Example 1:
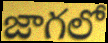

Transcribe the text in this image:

జాగలో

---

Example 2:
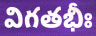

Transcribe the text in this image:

విగతభీః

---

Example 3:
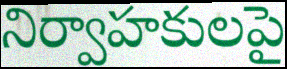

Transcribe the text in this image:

నిర్వాహకులపై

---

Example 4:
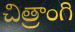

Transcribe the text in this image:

చిత్రాంగి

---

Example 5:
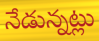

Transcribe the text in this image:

నేడున్నట్లు